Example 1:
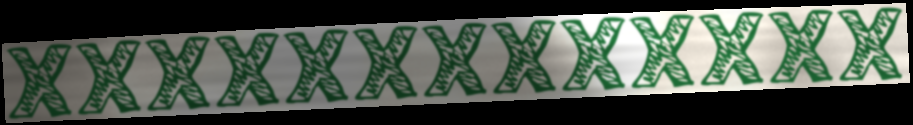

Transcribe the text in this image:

xxxxxxxxxxxxx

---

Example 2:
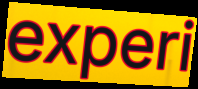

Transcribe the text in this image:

experi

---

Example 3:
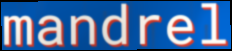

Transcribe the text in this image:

mandrel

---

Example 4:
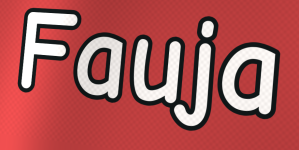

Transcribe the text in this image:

Fauja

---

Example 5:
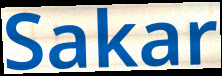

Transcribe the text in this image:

Sakar